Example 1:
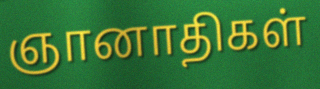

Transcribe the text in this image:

ஞானாதிகள்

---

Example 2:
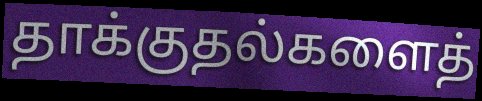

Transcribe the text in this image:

தாக்குதல்களைத்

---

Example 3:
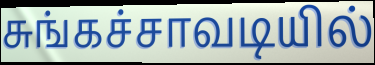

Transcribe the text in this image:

சுங்கச்சாவடியில்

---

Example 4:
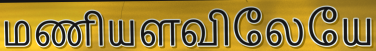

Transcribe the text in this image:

மணியளவிலேயே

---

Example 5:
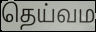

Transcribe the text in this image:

தெய்வம